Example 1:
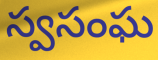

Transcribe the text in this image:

స్వసంఘ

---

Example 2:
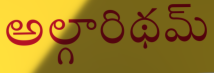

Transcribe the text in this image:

అల్గారిథమ్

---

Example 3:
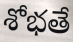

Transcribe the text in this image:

శోభతే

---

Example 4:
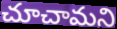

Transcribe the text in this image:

చూచామని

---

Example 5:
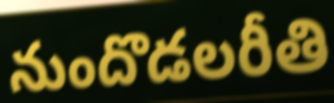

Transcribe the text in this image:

నుందొడలరీతి